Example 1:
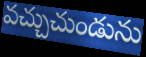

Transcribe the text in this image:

వచ్చుచుండును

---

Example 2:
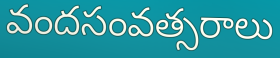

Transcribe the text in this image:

వందసంవత్సరాలు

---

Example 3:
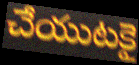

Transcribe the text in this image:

చేయుటకై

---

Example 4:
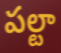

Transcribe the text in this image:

పల్టా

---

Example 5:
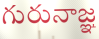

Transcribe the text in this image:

గురునాజ్ఞ